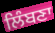
ਲਿੰਬਣਾ